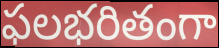
ఫలభరితంగా